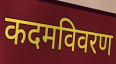
कदमविवरण